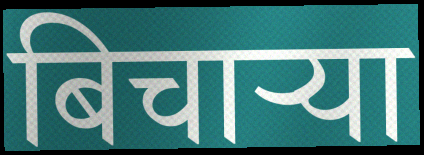
बिचाऱ्या